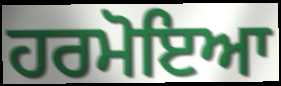
ਹਰਮੋਇਆ